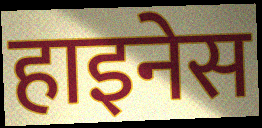
हाइनेस